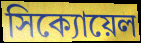
সিক্যোয়েল